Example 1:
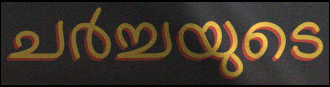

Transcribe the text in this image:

ചർച്ചയുടെ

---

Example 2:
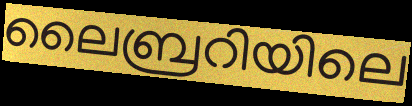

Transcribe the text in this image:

ലൈബ്രറിയിലെ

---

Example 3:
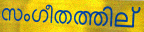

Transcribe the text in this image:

സംഗീതത്തില്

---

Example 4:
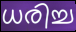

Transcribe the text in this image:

ധരിച്ച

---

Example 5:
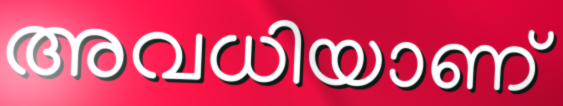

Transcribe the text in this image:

അവധിയാണ്